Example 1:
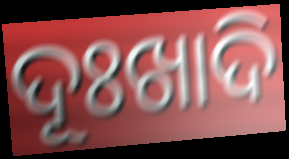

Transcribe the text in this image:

ଦୂଃଖାଦି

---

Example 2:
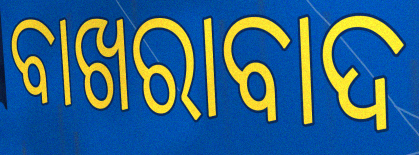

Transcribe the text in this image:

ବାଖରାବାଦ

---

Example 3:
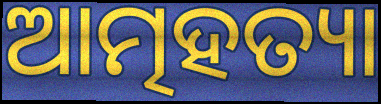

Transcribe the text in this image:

ଆତ୍ମହତ୍ୟା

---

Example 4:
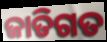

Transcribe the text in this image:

ଜାତିଗତ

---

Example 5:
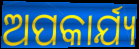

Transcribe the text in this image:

ଅପକାର୍ଯ୍ୟ